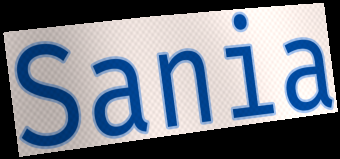
Sania